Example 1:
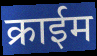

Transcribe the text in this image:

क्राईम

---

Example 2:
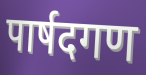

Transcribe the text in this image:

पार्षदगण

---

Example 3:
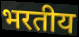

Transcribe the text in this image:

भरतीय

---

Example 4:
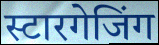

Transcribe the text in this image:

स्टारगेजिंग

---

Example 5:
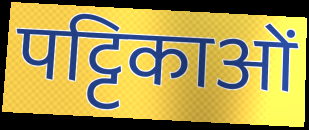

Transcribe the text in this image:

पट्टिकाओं